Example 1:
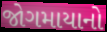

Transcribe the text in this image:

જોગમાયાનો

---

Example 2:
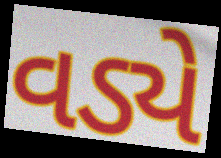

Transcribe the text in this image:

વડ્યે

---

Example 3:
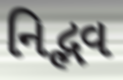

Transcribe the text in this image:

નિદ્ભવ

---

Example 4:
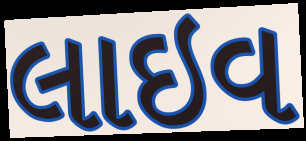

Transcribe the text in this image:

લાઇવ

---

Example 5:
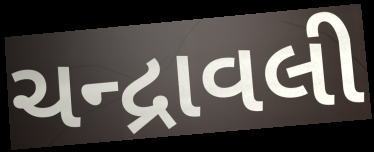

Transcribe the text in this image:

ચન્દ્રાવલી